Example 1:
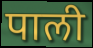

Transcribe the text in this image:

पाली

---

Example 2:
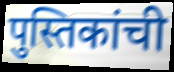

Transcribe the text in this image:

पुस्तिकांची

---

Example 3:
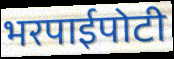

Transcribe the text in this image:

भरपाईपोटी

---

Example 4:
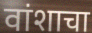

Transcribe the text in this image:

वांशाचा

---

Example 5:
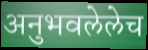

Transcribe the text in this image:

अनुभवलेलेच